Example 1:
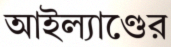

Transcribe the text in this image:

আইল্যাণ্ডের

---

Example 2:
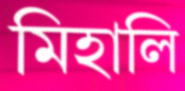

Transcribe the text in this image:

মিহালি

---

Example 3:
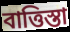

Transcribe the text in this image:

বাত্তিস্তা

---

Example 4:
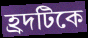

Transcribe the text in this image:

হ্রদটিকে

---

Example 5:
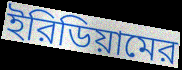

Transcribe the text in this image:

ইরিডিয়ামের